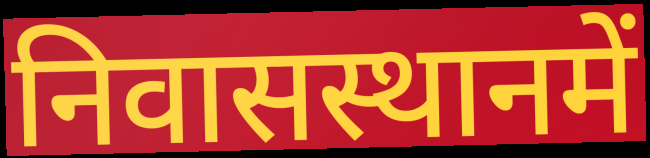
निवासस्थानमें